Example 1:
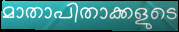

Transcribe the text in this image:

മാതാപിതാക്കളുടെ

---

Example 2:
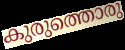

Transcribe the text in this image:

കുരുത്തൊരു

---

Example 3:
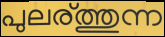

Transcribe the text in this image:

പുലര്ത്തുന്ന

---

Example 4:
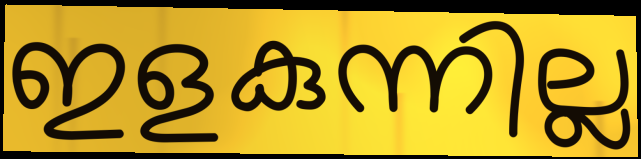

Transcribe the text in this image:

ഇളകുന്നില്ല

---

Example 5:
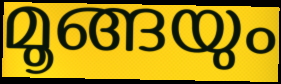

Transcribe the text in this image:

മൂങ്ങയും